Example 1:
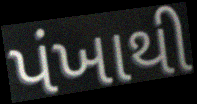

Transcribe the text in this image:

પંખાથી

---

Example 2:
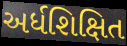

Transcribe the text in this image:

અર્ધશિક્ષિત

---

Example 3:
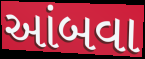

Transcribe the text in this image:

આંબવા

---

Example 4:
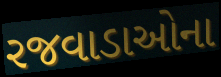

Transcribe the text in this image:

રજવાડાઓના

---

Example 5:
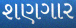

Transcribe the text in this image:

શણગાર